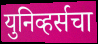
युनिव्हर्सचा